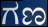
ಗಣ